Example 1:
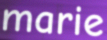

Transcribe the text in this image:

marie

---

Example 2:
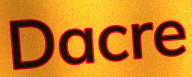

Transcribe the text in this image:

Dacre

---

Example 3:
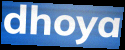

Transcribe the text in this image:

dhoya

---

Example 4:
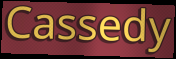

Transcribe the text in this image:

Cassedy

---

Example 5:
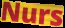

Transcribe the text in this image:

Nurs